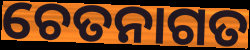
ଚେତନାଗତ